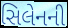
સિલેનની